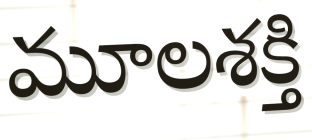
మూలశక్తి